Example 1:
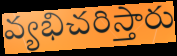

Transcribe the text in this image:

వ్యభిచరిస్తారు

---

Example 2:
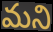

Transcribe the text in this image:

మని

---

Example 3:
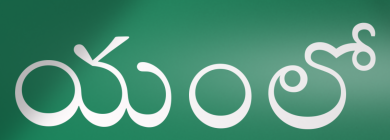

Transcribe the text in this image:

యంలో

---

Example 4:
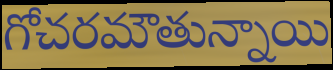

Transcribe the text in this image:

గోచరమౌతున్నాయి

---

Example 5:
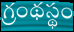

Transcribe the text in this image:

గ్రంథస్థం